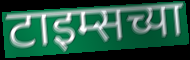
टाइम्सच्या